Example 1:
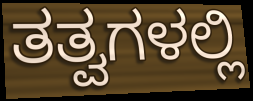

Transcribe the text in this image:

ತತ್ವಗಳಲ್ಲಿ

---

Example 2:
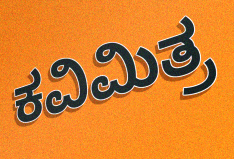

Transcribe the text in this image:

ಕವಿಮಿತ್ರ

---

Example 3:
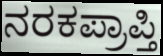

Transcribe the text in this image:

ನರಕಪ್ರಾಪ್ತಿ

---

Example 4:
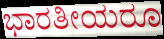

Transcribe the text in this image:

ಭಾರತೀಯರೂ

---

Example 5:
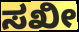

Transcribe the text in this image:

ಸಖೀ